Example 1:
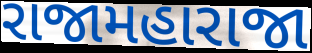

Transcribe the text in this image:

રાજામહારાજા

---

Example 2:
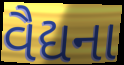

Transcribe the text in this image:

વૈદ્યના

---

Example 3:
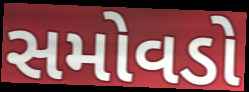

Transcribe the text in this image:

સમોવડો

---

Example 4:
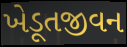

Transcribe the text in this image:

ખેડૂતજીવન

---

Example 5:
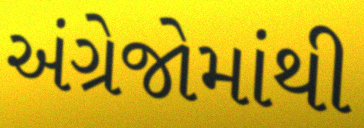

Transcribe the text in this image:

અંગ્રેજોમાંથી